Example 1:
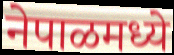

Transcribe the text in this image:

नेपाळमध्ये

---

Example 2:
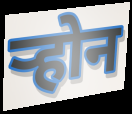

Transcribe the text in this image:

र्‍होन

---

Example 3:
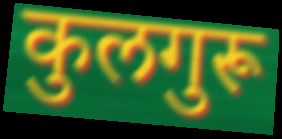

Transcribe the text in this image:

कुलगुरू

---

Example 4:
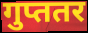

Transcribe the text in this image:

गुप्ततर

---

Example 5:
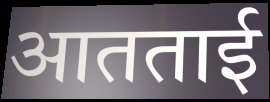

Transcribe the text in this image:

आतताई